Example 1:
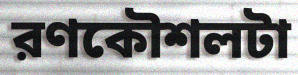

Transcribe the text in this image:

রণকৌশলটা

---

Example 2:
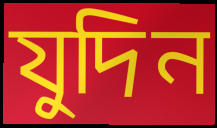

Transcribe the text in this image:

যুদিন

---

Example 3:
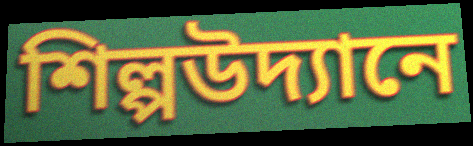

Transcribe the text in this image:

শিল্পউদ্যানে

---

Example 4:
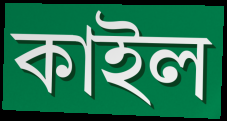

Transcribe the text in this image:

কাইল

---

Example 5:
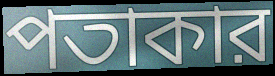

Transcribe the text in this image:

পতাকার